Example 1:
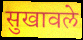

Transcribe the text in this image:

सुखावले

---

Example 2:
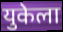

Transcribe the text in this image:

युकेला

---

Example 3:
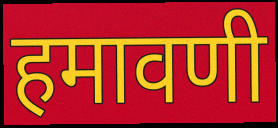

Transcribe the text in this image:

हमावणी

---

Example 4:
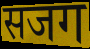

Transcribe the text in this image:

सजग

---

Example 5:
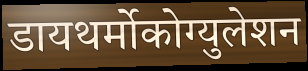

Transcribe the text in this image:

डायथर्मोकोग्युलेशन